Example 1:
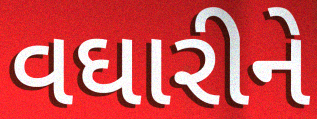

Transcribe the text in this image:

વઘારીને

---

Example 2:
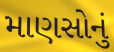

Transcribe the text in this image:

માણસોનું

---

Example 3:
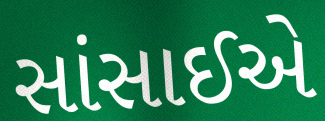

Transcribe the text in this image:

સાંસાઈએ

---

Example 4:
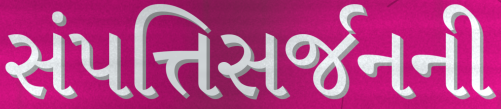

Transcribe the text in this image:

સંપત્તિસર્જનની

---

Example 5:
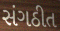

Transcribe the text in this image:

સંગઠીત